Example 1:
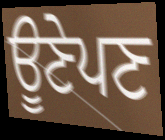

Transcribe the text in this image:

ਊਣੇਪਣ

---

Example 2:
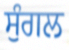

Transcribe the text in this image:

ਸੁੰਗਲ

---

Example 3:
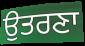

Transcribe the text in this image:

ਉਤਰਣਾ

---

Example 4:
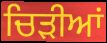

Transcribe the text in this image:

ਚਿੜੀਆਂ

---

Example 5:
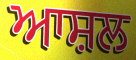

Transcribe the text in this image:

ਆਸ਼ਲ